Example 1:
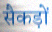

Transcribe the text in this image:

सैकड़ों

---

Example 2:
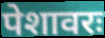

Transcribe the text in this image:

पेशावरः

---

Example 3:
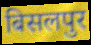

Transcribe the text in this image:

बिसलपुर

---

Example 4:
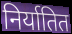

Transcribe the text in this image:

निर्यातित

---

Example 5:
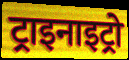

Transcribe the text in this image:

ट्राइनाइट्रो